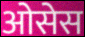
ओसेस